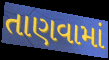
તાણવામાં